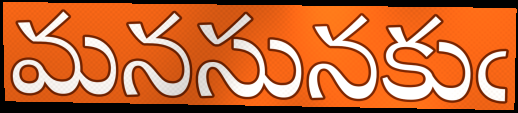
మనసునకుఁ